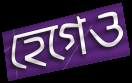
হেগেও